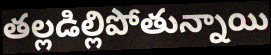
తల్లడిల్లిపోతున్నాయి